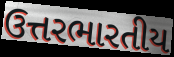
ઉત્તરભારતીય